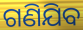
ଗଣିଯିବ